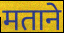
मताने